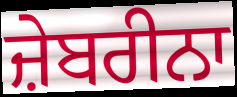
ਜ਼ੇਬਰੀਨਾ